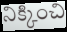
నిక్కించి